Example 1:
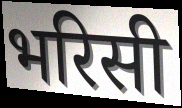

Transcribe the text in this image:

भरिसी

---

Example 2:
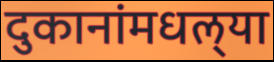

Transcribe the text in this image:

दुकानांमधल्या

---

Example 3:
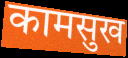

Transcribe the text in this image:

कामसुख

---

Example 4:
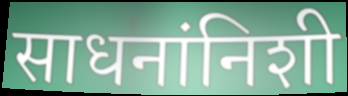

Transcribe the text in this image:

साधनांनिशी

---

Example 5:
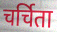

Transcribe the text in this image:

चर्चिता